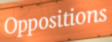
Oppositions